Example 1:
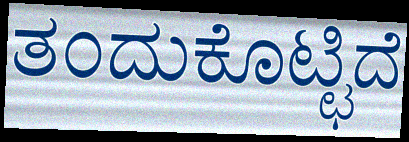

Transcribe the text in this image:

ತಂದುಕೊಟ್ಟಿದೆ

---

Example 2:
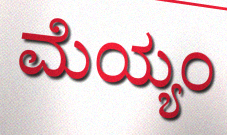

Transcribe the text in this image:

ಮೆಯ್ಯಂ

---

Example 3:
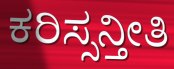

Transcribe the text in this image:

ಕರಿಸ್ಸನ್ತೀತಿ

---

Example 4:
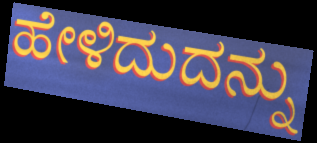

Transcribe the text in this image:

ಹೇಳಿದುದನ್ನು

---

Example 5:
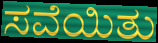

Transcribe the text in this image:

ಸವೆಯಿತು